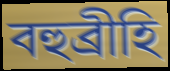
বহুব্ৰীহি